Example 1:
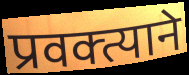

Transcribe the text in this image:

प्रवक्‍त्याने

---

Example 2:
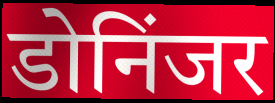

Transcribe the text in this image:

डोनिंजर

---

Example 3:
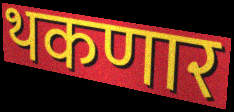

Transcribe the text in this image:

थकणार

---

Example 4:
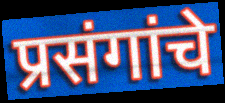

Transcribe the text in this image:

प्रसंगांचे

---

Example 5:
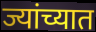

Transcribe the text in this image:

ज्यांच्यात